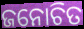
ଜନୋଚିତ